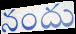
నందు